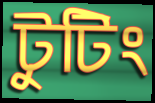
টুটিং